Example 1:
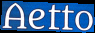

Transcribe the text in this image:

Aetto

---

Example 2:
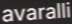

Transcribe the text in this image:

avaralli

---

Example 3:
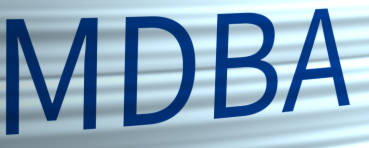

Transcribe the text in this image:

MDBA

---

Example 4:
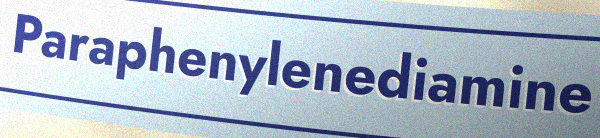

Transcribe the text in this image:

Paraphenylenediamine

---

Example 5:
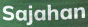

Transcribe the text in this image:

Sajahan